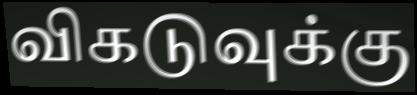
விகடுவுக்கு